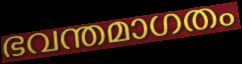
ഭവന്തമാഗതം